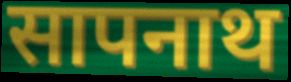
सापनाथ